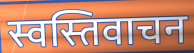
स्वस्तिवाचन